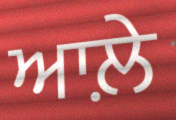
ਆਲ਼ੇ